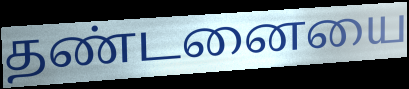
தண்டனையை